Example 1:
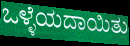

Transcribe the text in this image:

ಒಳ್ಳೆಯದಾಯಿತು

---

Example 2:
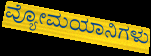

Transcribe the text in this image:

ವ್ಯೋಮಯಾನಿಗಳು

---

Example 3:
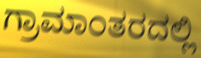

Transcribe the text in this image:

ಗ್ರಾಮಾಂತರದಲ್ಲಿ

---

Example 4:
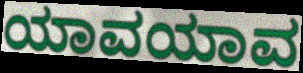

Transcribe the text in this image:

ಯಾವಯಾವ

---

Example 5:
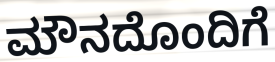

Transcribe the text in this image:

ಮೌನದೊಂದಿಗೆ